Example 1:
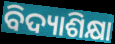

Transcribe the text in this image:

ବିଦ୍ୟାଶିକ୍ଷା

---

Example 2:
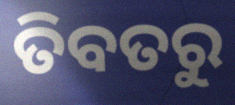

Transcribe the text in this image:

ତିବତରୁ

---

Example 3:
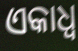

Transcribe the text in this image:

ଏକାଧ୍ଵ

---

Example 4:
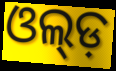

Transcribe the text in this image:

ଓଲ୍ଡ଼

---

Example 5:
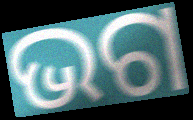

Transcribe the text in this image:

ଭଗ